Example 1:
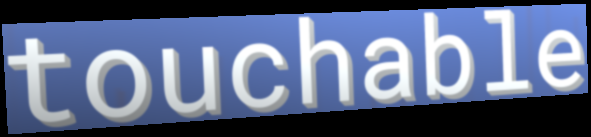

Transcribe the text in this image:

touchable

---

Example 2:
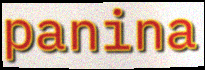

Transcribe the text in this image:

panina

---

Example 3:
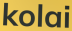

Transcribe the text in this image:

kolai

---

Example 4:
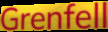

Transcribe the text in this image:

Grenfell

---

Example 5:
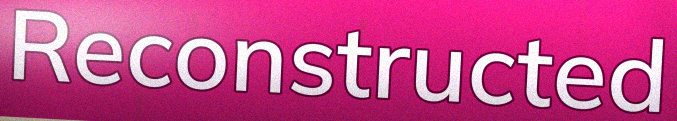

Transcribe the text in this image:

Reconstructed